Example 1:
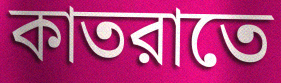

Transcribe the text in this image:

কাতরাতে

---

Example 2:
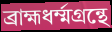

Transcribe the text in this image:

ব্রাহ্মধর্ম্মগ্রন্থে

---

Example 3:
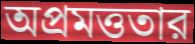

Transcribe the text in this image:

অপ্রমত্ততার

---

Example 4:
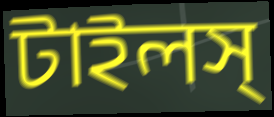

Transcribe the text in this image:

টাইলস্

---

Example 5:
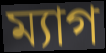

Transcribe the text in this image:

ম্যাগ